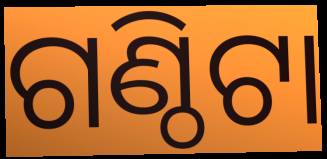
ଗଣ୍ଠିଟା